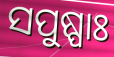
ସପୁଷ୍ପାଃ